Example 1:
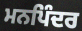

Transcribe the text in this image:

ਮਨਪਿੰਦਰ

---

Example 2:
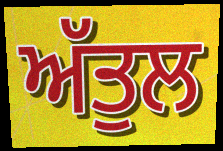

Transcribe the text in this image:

ਅੱਤੁਲ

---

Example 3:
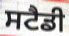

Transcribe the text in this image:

ਸਟੈਡੀ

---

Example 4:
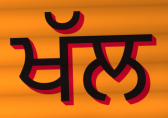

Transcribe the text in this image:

ਖੱਲ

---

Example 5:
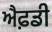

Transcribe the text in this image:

ਐਫ਼ਡੀ